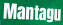
Mantagu